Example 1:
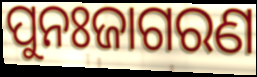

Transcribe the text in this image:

ପୁନଃଜାଗରଣ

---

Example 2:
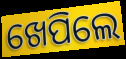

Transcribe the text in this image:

ଖେପିଲେ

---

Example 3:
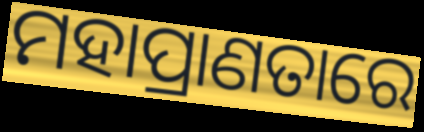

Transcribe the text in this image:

ମହାପ୍ରାଣତାରେ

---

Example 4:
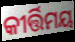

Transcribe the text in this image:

କୀର୍ତ୍ତିମୟ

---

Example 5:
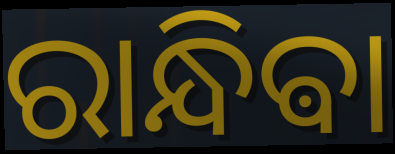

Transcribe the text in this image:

ରାନ୍ଧିଵା